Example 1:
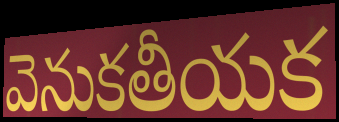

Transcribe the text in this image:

వెనుకతీయక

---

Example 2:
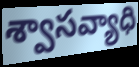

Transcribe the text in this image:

శ్వాసవ్యాధి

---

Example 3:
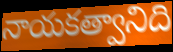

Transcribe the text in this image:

నాయకత్వానిది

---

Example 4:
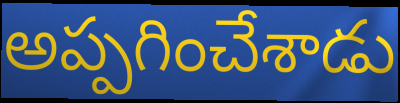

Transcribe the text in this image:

అప్పగించేశాడు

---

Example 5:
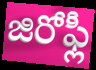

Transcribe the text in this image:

జిరోఫ్లీ